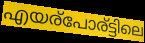
എയര്പോര്ട്ടിലെ